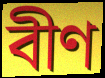
বীণ